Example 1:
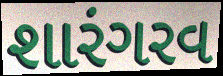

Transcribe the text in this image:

શારંગરવ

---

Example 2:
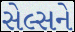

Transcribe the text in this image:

સેલ્સને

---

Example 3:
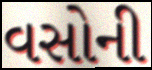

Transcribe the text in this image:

વસોની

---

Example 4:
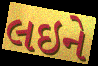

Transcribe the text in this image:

લઇને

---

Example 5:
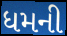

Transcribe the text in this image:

ધમની